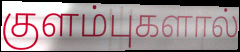
குளம்புகளால்